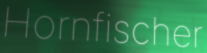
Hornfischer